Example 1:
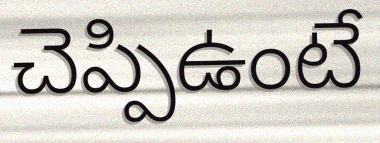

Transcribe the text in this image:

చెప్పిఉంటే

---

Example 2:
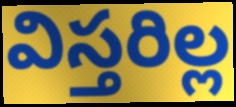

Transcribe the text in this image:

విస్తరిల్ల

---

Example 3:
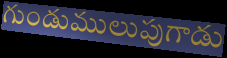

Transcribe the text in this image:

గుండుములుపుగాడు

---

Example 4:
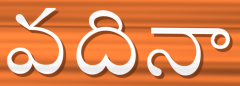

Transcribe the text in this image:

వదినా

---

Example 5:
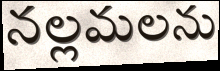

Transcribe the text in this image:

నల్లమలను